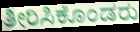
ತೀರಿಸಿಕೊಂಡರು